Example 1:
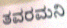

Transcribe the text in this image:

ತವರಮನಿ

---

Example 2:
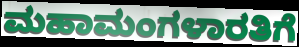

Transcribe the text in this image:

ಮಹಾಮಂಗಳಾರತಿಗೆ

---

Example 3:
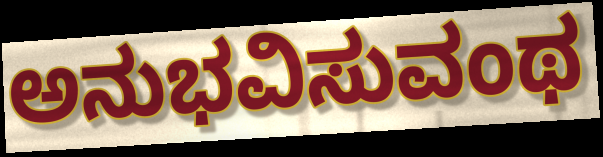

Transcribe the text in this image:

ಅನುಭವಿಸುವಂಥ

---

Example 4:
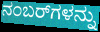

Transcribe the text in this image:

ನಂಬರ್‌ಗಳನ್ನು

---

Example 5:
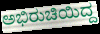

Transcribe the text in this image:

ಅಭಿರುಚಿಯಿದ್ದ